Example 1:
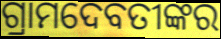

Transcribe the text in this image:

ଗ୍ରାମଦେବତୀଙ୍କର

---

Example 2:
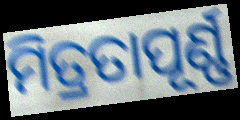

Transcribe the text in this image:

ମିତ୍ରତାପୂର୍ଣ୍ଣ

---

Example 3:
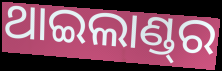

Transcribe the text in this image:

ଥାଇଲାଣ୍ଡ୍‌ର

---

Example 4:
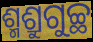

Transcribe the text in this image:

ଶ୍ମଶ୍ରୁଗୁଚ୍ଛ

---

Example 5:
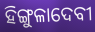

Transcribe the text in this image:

ହିଙ୍ଗୁଳାଦେବୀ